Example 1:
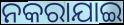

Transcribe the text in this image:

ନକରାଯାଇ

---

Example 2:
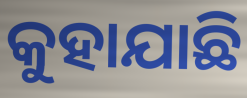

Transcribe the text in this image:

କୁହାଯାଛି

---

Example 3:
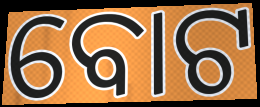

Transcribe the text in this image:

ବୋଟ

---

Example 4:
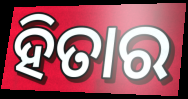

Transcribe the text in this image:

ହିତାର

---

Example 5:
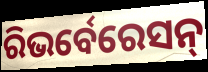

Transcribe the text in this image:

ରିଭର୍ବେରେସନ୍